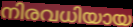
നിരവധിയായ